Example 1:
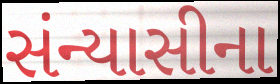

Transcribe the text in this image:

સંન્યાસીના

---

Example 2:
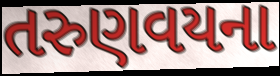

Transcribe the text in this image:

તરુણવયના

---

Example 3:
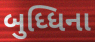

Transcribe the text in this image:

બુધ્ધિના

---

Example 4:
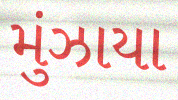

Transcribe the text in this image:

મુંઝાયા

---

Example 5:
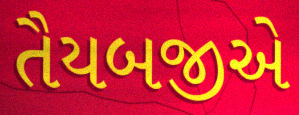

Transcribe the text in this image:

તૈયબજીએ